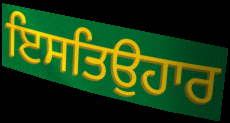
ਇਸਤਿਉਹਾਰ